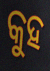
କୁହ